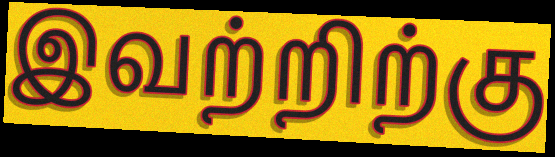
இவற்றிற்கு